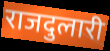
राजदुलारी